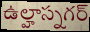
ఉల్హాస్నగర్